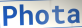
Phota